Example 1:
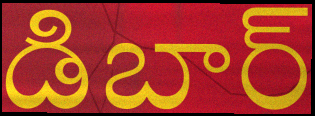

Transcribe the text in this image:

డిబార్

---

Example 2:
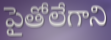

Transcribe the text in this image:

పైతోలేగాని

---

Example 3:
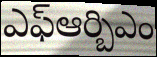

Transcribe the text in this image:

ఎఫ్ఆర్బిఎం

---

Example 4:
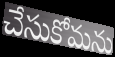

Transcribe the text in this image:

చేసుకోమను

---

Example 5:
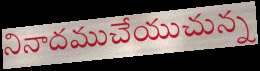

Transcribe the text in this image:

నినాదముచేయుచున్న